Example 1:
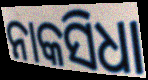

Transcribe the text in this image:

ନାକସିଧା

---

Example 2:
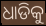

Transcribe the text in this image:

ଧାଡିକୁ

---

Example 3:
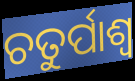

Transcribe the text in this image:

ଚତୁର୍ପାଶ୍ୱ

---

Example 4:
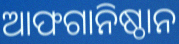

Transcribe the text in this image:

ଆଫଗାନିଷ୍ଠାନ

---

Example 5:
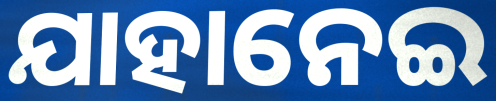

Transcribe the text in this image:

ଯାହାନେଇ